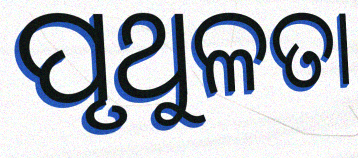
ପୃଥୁଳତା